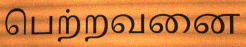
பெற்றவனை